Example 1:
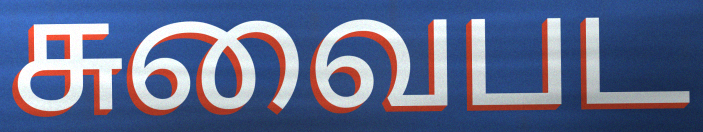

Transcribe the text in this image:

சுவைபட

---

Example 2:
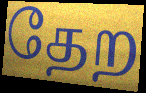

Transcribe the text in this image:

தேற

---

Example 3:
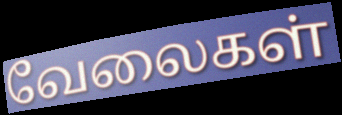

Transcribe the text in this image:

வேலைகள்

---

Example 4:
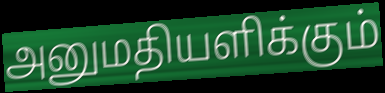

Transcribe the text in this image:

அனுமதியளிக்கும்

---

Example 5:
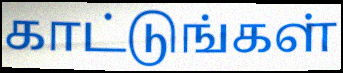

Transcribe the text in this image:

காட்டுங்கள்